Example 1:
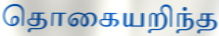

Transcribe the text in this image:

தொகையறிந்த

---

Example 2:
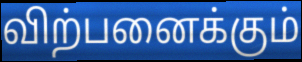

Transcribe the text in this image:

விற்பனைக்கும்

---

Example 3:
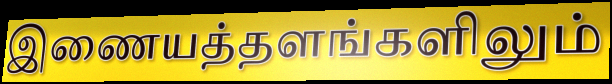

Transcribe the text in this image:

இணையத்தளங்களிலும்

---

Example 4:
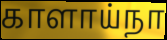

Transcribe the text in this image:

காளாய்நா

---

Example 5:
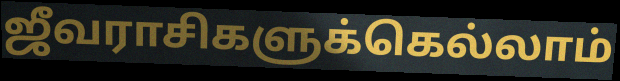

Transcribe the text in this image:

ஜீவராசிகளுக்கெல்லாம்